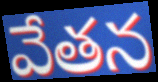
వేతన